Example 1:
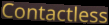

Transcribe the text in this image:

Contactless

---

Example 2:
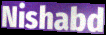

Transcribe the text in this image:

Nishabd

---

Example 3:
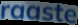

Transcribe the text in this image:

raaste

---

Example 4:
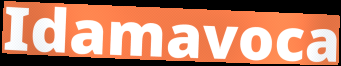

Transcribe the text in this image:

Idamavoca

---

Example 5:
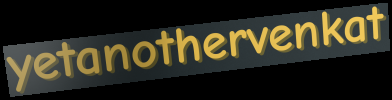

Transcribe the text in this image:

yetanothervenkat